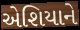
એશિયાને